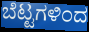
ಬೆಟ್ಟಗಳಿಂದ